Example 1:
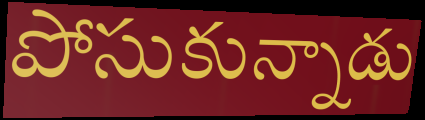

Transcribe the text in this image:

పోసుకున్నాడు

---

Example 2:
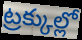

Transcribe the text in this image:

ట్రక్కుల్లో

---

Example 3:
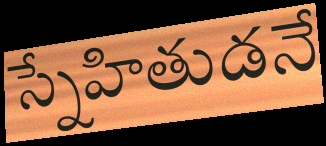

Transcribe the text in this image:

స్నేహితుడనే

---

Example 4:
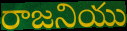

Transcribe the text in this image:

రాజనియు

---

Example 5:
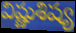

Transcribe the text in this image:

విష్ణుశిష్య